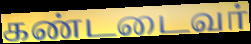
கண்டடைவர்